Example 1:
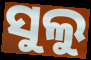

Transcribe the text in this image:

ସୁଲୁ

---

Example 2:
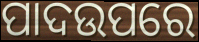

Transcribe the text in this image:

ପାଦଉପରେ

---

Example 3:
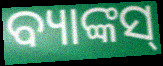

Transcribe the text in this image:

ବ୍ୟାଙ୍କସ୍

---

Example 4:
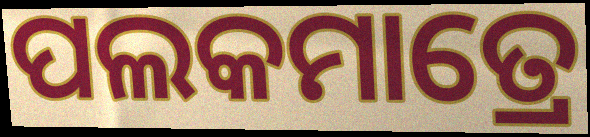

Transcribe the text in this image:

ପଲକମାତ୍ରେ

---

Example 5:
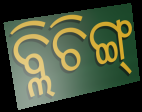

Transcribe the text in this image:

ବ୍ଲିଚିଙ୍ଗ୍